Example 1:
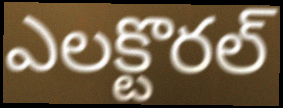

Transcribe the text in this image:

ఎలక్టొరల్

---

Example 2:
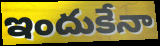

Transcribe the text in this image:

ఇందుకేనా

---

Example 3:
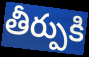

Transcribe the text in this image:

తీర్పుకి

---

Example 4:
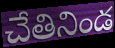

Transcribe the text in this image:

చేతినిండ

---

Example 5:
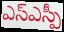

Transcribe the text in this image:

ఎస్ఎస్పీ